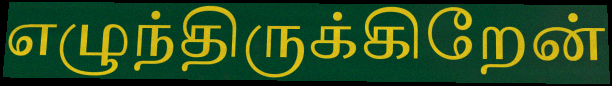
எழுந்திருக்கிறேன்